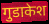
गुडाकेश